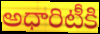
అధారిటీకి